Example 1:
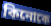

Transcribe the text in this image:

কিনোকে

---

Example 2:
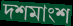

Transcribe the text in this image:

দশমাংশ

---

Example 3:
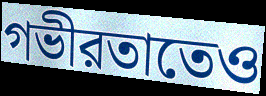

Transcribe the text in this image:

গভীরতাতেও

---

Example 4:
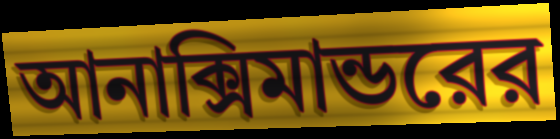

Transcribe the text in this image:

আনাক্সিমান্ডরের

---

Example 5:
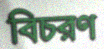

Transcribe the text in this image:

বিচরণ